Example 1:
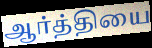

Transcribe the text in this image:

ஆர்த்தியை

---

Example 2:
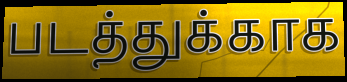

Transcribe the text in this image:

படத்துக்காக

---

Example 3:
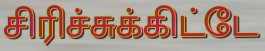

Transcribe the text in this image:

சிரிச்சுக்கிட்டே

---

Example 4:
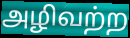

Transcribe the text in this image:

அழிவற்ற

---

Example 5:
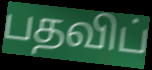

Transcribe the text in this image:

பதவிப்